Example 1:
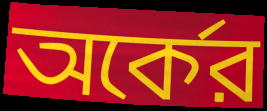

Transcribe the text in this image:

অর্কের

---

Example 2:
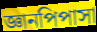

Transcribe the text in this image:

জ্ঞানপিপাসা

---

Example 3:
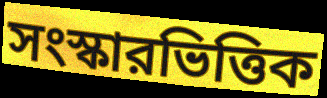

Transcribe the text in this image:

সংস্কারভিত্তিক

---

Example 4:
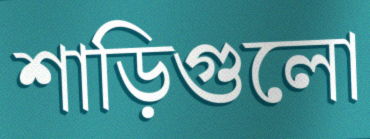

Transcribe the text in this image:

শাড়িগুলো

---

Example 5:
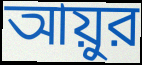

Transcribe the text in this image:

আয়ুর